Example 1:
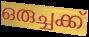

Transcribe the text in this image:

ഒരുച്ചക്ക്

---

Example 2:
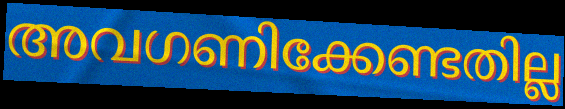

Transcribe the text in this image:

അവഗണിക്കേണ്ടതില്ല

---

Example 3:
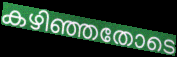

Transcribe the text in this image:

കഴിഞ്ഞതോടെ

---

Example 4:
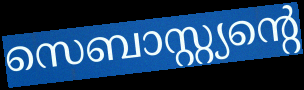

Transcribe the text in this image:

സെബാസ്റ്റ്യന്റെ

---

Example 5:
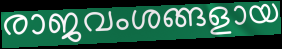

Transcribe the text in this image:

രാജവംശങ്ങളായ